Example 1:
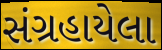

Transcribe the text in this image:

સંગ્રહાયેલા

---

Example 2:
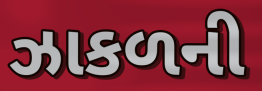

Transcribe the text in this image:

ઝાકળની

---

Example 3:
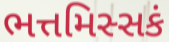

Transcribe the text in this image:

ભત્તમિસ્સકં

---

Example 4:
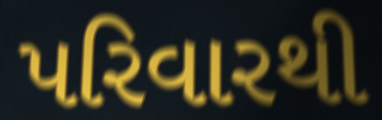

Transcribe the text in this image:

પરિવારથી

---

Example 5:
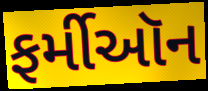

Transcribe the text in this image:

ફર્મીઑન